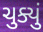
ચુક્યું